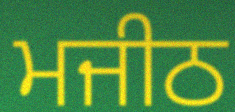
ਮਜੀਠ